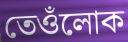
তেওঁলোক